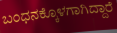
ಬಂಧನಕ್ಕೊಳಗಾಗಿದ್ದಾರೆ